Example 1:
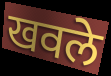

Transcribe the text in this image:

खवले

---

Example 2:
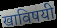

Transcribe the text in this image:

खाविषयी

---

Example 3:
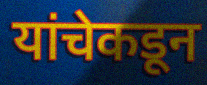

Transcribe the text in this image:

यांचेकडून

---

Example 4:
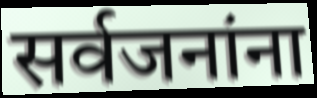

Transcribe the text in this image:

सर्वजनांना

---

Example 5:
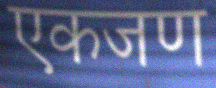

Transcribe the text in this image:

एकजण